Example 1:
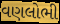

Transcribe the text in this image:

વણલોભી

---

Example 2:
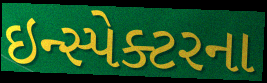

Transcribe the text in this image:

ઇન્સ્પેક્ટરના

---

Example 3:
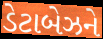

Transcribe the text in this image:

ડેટાબેઝને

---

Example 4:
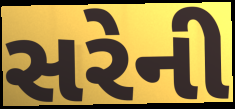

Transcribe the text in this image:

સરેની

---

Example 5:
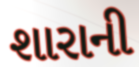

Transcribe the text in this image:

શારાની